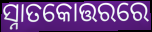
ସ୍ନାତକୋତ୍ତରରେ